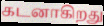
கடனாகிறது